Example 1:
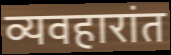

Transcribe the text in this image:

व्यवहारांत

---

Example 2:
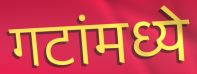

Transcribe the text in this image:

गटांमध्ये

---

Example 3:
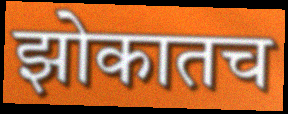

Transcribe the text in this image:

झोकातच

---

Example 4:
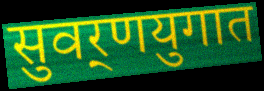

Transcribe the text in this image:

सुवर्णयुगात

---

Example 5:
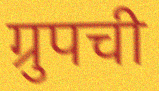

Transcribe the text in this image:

ग्रुपची